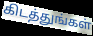
கிடத்துங்கள்